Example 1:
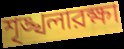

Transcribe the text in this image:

শৃঙ্খলারক্ষা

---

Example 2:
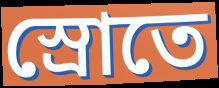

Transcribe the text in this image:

স্রোতে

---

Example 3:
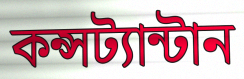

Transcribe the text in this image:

কন্সট্যান্টান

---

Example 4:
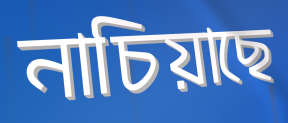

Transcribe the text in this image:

নাচিয়াছে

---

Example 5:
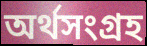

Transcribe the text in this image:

অর্থসংগ্রহ